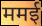
ममई